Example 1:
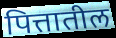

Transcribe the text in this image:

पित्तातील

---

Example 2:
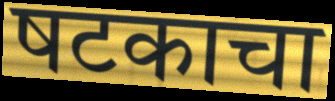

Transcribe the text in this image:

षटकाचा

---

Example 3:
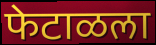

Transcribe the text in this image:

फेटाळला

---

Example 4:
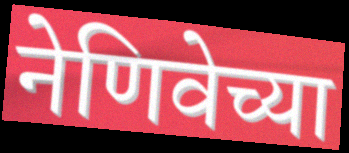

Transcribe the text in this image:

नेणिवेच्या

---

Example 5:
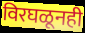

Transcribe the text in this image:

विरघळूनही